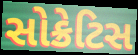
સોક્રેટિસ